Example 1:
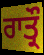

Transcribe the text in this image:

ਰਾਤ੍ਰੌ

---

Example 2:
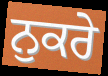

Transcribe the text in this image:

ਨੁਕਰੇ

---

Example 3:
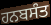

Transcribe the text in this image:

ਹਨਬਸੰਤ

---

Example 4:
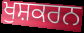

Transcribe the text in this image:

ਖੁਸ਼ਕਰਨ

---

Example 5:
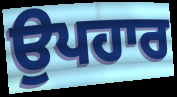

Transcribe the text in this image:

ਉਪਹਾਰ